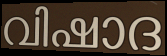
വിഷാദ